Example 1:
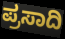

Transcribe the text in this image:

ಪ್ರಸಾದಿ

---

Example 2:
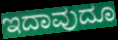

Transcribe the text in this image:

ಇದಾವುದೂ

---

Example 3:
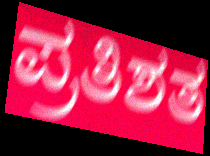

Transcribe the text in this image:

ಪ್ರತಿಶತ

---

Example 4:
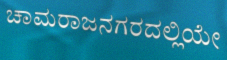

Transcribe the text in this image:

ಚಾಮರಾಜನಗರದಲ್ಲಿಯೇ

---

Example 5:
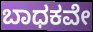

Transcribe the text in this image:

ಬಾಧಕವೇ